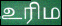
உரிம